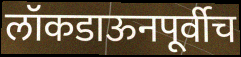
लॉकडाऊनपूर्वीच